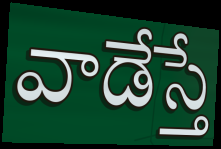
వాడేస్తే